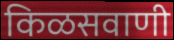
किळसवाणी